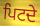
ਪਿਟਦੇ